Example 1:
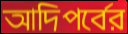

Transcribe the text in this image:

আদিপর্বের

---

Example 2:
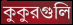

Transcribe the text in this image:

কুকুরগুলি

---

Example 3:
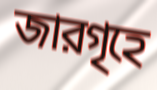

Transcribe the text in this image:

জারগৃহে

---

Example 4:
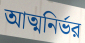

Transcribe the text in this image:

আত্মনির্ভর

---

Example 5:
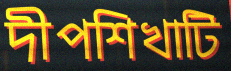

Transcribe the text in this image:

দীপশিখাটি